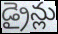
డ్రైన్లు